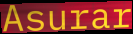
Asurar